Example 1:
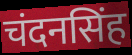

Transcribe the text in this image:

चंदनसिंह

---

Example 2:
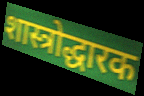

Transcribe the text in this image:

शास्त्रोद्धारक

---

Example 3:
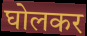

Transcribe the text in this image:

घोलकर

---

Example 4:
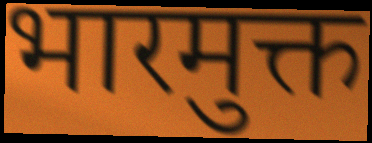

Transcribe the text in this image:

भारमुक्त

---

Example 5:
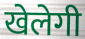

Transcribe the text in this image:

खेलेगी